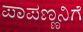
ಪಾಪಣ್ಣನಿಗೆ